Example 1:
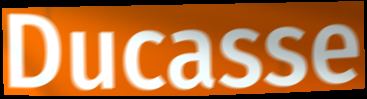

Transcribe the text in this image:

Ducasse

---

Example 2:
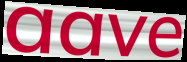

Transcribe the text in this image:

aave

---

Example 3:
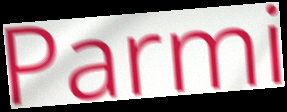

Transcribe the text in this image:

Parmi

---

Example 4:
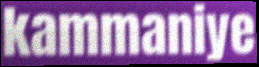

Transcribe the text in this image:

kammaniye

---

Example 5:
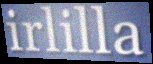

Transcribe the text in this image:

irlilla